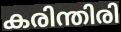
കരിന്തിരി